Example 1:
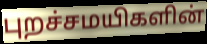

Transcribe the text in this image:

புறச்சமயிகளின்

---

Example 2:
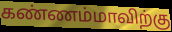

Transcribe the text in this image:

கண்ணம்மாவிற்கு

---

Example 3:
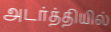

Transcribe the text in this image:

அடர்த்தியில்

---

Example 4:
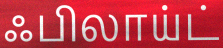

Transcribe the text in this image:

ஃபிலாய்ட்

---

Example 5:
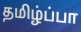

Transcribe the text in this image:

தமிழ்ப்பா